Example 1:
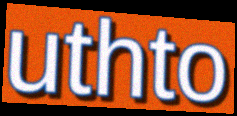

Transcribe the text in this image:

uthto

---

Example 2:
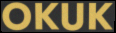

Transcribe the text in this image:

OKUK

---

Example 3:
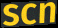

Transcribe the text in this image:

scn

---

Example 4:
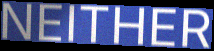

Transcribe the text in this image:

NEITHER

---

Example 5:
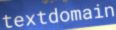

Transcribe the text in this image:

textdomain